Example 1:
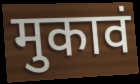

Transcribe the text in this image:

मुकावं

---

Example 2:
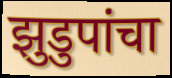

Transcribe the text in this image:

झुडुपांचा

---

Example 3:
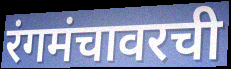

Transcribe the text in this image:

रंगमंचावरची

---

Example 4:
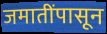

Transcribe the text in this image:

जमातींपासून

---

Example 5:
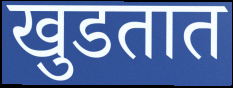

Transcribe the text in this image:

खुडतात